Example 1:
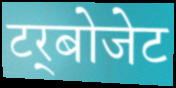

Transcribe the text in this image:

टर्बोजेट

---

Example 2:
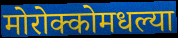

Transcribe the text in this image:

मोरोक्कोमधल्या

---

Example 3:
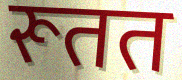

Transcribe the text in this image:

रूतत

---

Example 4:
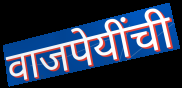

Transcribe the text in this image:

वाजपेयींची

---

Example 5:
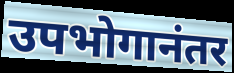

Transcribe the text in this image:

उपभोगानंतर